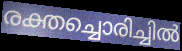
രക്തച്ചൊരിച്ചിൽ